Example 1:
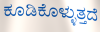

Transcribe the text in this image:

ಕೂಡಿಕೊಳ್ಳುತ್ತದೆ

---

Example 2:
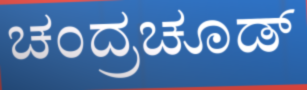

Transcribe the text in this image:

ಚಂದ್ರಚೂಡ್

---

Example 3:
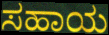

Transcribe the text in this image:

ಸಹಾಯ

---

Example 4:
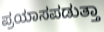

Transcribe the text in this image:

ಪ್ರಯಾಸಪಡುತ್ತಾ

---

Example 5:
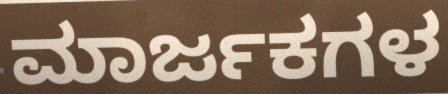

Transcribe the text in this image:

ಮಾರ್ಜಕಗಳ